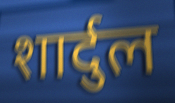
शार्दुल